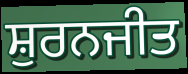
ਸ਼ੁਰਨਜੀਤ